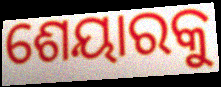
ଶେୟାରକୁ